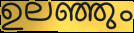
ഉലഞ്ഞും